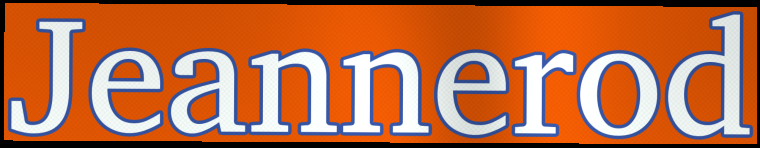
Jeannerod